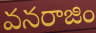
వనరాజిం